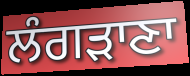
ਲੰਗੜਾਣਾ